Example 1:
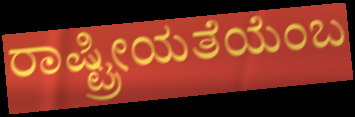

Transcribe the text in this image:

ರಾಷ್ಟ್ರೀಯತೆಯೆಂಬ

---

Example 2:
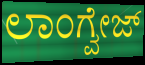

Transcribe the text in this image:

ಲಾಂಗ್ವೇಜ್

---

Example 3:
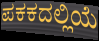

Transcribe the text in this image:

ಪಕಕದಲ್ಲಿಯೆ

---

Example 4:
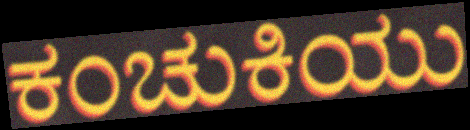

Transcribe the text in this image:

ಕಂಚುಕಿಯು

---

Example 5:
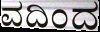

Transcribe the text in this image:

ವದಿಂದ